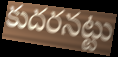
కుదరనట్టు